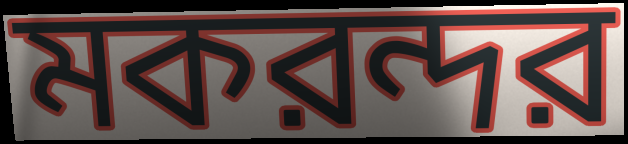
মকরন্দর